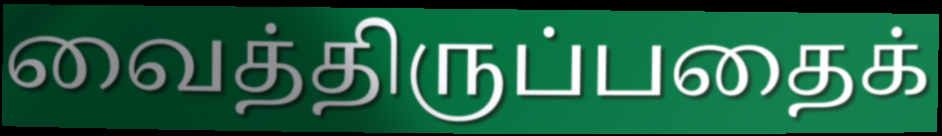
வைத்திருப்பதைக்